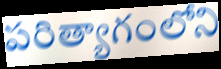
పరిత్యాగంలోని